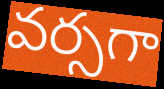
వర్సగా